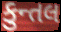
કુન્તલ